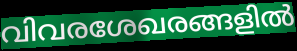
വിവരശേഖരങ്ങളിൽ